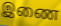
இணை